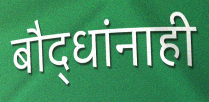
बौद्धांनाही